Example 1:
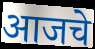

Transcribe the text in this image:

आजचे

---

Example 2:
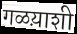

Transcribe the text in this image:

गळय़ाशी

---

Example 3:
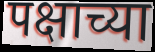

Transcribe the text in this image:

पक्षाच्या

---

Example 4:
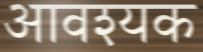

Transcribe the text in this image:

आवश्यक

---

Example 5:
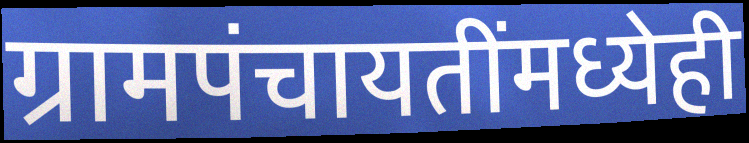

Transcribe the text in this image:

ग्रामपंचायतींमध्येही